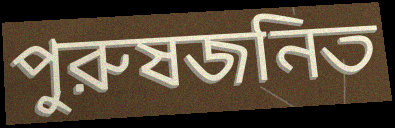
পুরুষজনিত